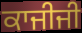
ਕਾਜੀਜੀ